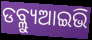
ଡବ୍ଲ୍ୟୁଆଇଭି